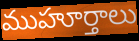
ముహూర్తాలు